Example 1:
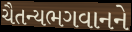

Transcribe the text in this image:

ચૈતન્યભગવાનને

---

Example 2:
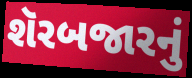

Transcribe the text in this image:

શૅરબજારનું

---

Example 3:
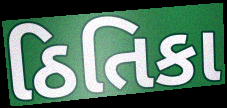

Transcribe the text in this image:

ઠિતિકા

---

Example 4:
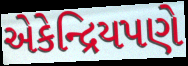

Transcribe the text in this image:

એકેન્દ્રિયપણે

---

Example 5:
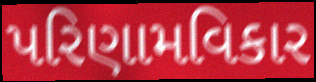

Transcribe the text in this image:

પરિણામવિકાર